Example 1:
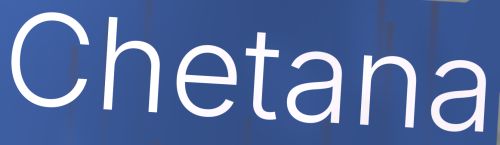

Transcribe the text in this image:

Chetana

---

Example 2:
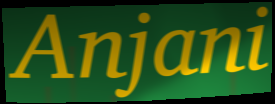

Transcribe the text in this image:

Anjani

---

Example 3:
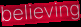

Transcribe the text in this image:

believing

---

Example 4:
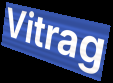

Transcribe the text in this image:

Vitrag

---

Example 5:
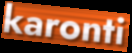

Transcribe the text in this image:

karonti